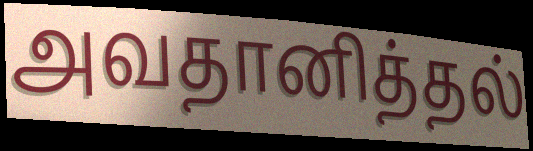
அவதானித்தல்